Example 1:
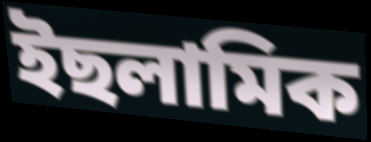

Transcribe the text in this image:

ইছলামিক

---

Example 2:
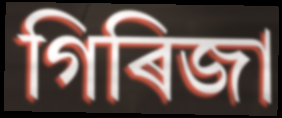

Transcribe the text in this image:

গিৰিজা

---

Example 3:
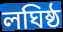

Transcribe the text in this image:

লঘিষ্ঠ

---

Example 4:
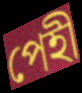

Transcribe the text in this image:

পেহী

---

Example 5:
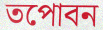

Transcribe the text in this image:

তপোবন